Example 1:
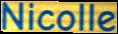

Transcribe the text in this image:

Nicolle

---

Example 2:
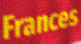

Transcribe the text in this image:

Frances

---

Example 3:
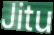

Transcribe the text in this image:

Jitu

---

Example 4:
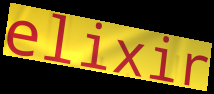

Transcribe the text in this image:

elixir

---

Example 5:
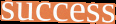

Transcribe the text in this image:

success